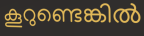
കൂറുണ്ടെങ്കിൽ